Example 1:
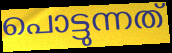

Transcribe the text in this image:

പൊട്ടുന്നത്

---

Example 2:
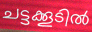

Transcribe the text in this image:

ചട്ടക്കൂടിൽ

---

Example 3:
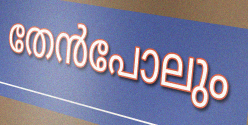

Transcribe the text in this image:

തേൻപോലും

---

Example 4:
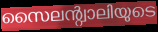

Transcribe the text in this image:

സൈലന്റ്വാലിയുടെ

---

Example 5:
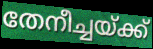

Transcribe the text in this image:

തേനീച്ചയ്ക്ക്